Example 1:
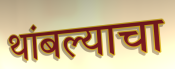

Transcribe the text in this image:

थांबल्याचा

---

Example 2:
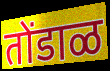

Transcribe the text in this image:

तोंडाळ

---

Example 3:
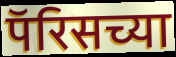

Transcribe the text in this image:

पॅरिसच्या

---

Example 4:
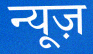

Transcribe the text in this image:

न्यूज़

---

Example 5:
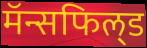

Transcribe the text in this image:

मॅन्सफिल्ड